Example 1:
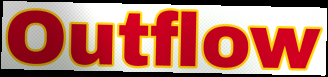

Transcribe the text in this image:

Outflow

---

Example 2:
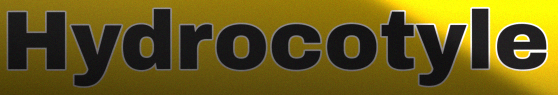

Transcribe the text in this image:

Hydrocotyle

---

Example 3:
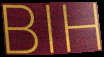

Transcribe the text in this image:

BIH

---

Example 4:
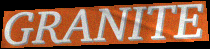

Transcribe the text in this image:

GRANITE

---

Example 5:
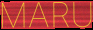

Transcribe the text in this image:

MARU